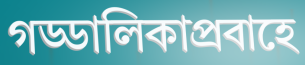
গড্ডালিকাপ্রবাহে